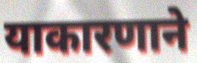
याकारणाने